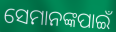
ସେମାନଙ୍କପାଇଁ